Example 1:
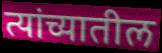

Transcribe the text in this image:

त्यांच्यातील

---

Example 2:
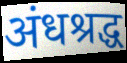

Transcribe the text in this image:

अंधश्रद्ध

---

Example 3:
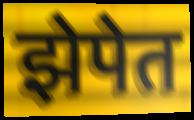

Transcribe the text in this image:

झेपेत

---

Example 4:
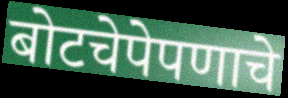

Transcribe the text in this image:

बोटचेपेपणाचे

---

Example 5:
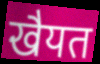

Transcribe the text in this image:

खैयत